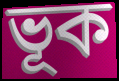
ভূক